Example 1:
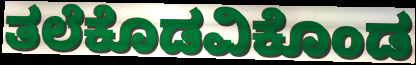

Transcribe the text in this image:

ತಲೆಕೊಡವಿಕೊಂಡ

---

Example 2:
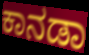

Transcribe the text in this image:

ಕಾನಡಾ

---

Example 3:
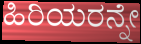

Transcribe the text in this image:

ಹಿರಿಯರನ್ನೇ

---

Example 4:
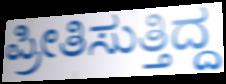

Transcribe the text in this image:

ಪ್ರೀತಿಸುತ್ತಿದ್ದ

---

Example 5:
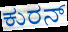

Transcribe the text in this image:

ಕುರನ್